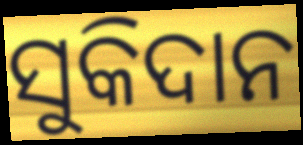
ସୁକିଦାନ